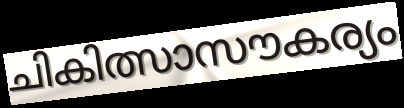
ചികിത്സാസൗകര്യം